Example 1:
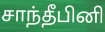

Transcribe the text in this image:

சாந்தீபினி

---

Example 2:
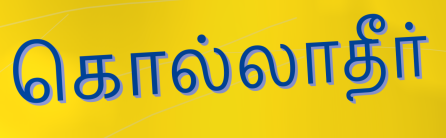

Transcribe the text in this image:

கொல்லாதீர்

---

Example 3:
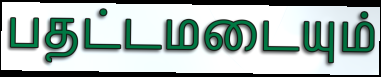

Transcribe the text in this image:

பதட்டமடையும்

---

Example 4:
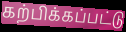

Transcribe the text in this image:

கற்பிக்கப்பட்டு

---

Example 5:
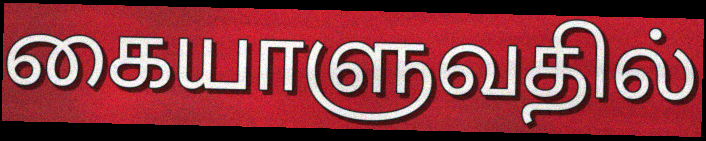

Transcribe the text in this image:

கையாளுவதில்